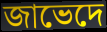
জাভেদে